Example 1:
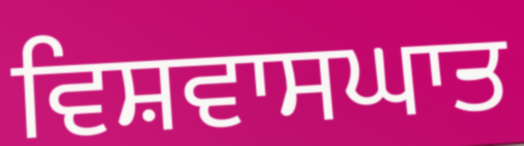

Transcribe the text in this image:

ਵਿਸ਼ਵਾਸਘਾਤ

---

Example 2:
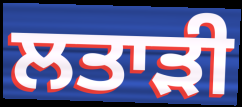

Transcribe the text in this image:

ਲਤਾੜੀ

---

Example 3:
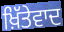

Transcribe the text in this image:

ਖ਼ਿੱਤੇਵਾਦ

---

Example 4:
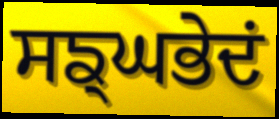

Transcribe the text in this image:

ਸਙ੍ਘਭੇਦਂ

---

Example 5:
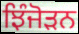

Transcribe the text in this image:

ਝਿੰਜੋੜਨ